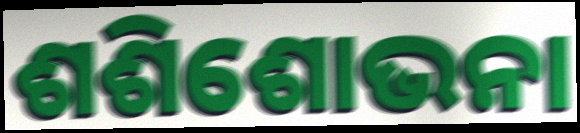
ଶଶିଶୋଭନା